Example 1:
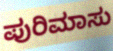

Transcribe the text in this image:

ಪುರಿಮಾಸು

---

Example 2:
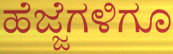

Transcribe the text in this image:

ಹೆಜ್ಜೆಗಳಿಗೂ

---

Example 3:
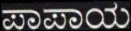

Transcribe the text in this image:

ಪಾಪಾಯ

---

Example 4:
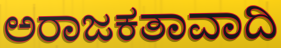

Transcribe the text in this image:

ಅರಾಜಕತಾವಾದಿ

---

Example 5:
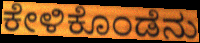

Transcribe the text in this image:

ಕೇಳಿಕೊಂಡೆನು